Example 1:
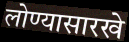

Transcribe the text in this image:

लोण्यासारखे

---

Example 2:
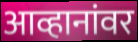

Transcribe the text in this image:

आव्हानांवर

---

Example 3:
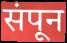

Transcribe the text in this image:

संपून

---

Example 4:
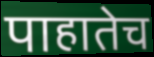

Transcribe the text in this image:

पाहातेच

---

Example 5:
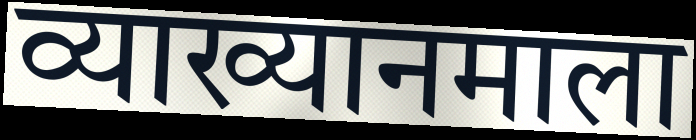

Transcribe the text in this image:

व्याख्यानमाला